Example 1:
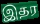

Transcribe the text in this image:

இதர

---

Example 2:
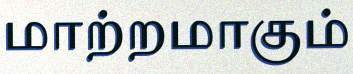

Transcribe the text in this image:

மாற்றமாகும்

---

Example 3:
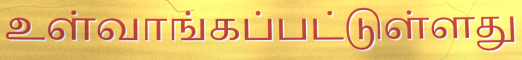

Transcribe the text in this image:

உள்வாங்கப்பட்டுள்ளது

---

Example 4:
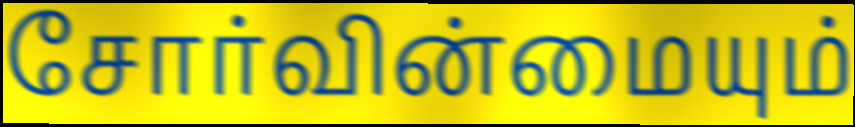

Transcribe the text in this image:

சோர்வின்மையும்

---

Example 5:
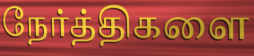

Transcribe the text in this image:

நேர்த்திகளை